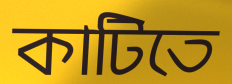
কাটিতে